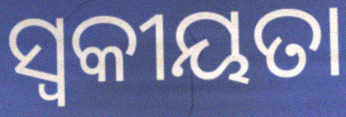
ସ୍ଵକୀୟତା